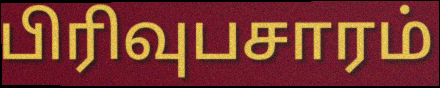
பிரிவுபசாரம்